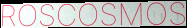
ROSCOSMOS